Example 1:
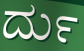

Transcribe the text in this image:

ರ್ದು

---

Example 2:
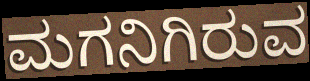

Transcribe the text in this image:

ಮಗನಿಗಿರುವ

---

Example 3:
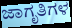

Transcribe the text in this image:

ಜಾಗೃತಿಗಳ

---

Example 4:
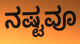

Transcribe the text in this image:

ನಷ್ಟವೂ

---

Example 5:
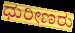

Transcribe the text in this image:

ಧುರೀಣರು